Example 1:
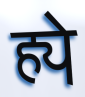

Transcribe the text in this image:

ह्ये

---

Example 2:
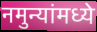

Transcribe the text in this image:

नमुन्यांमध्ये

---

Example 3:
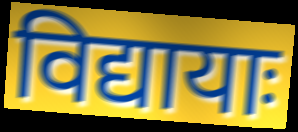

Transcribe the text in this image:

विद्यायाः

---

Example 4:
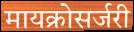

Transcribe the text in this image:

मायक्रोसर्जरी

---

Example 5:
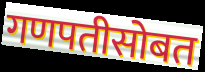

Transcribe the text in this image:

गणपतीसोबत